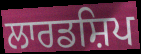
ਲਾਰਡਸ਼ਿਪ